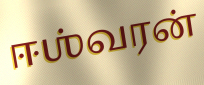
ஈஶ்வரன்